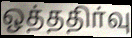
ஒத்ததிர்வு